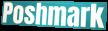
Poshmark